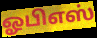
ஓபிஎஸ்